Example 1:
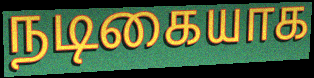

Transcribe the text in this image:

நடிகையாக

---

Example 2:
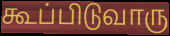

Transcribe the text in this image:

கூப்பிடுவாரு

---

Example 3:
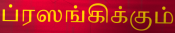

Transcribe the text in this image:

ப்ரஸங்கிக்கும்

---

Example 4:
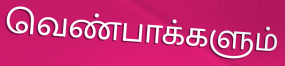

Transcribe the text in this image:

வெண்பாக்களும்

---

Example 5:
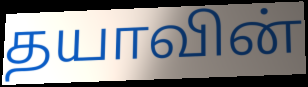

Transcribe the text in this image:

தயாவின்